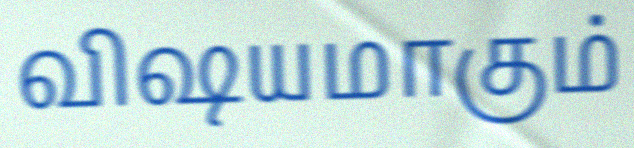
விஷயமாகும்